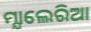
ମ୍ଯାଲେରିଆ